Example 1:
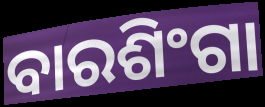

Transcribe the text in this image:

ବାରଶିଂଗା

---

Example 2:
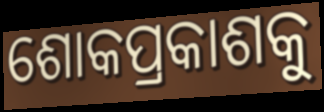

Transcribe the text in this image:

ଶୋକପ୍ରକାଶକୁ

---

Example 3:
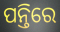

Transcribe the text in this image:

ପନ୍ତିରେ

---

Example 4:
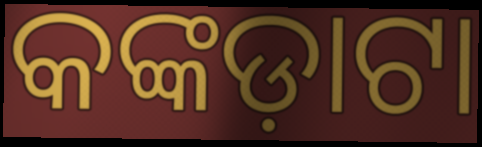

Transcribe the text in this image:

କଙ୍କଡ଼ାଟା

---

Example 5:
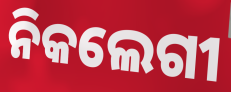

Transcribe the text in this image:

ନିକଲେଗୀ